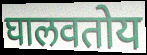
घालवतोय